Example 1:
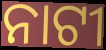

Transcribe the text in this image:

ନାଟୀ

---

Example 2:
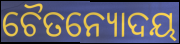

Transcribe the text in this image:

ଚୈତନ୍ୟୋଦୟ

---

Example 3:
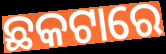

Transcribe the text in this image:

ଛକଟାରେ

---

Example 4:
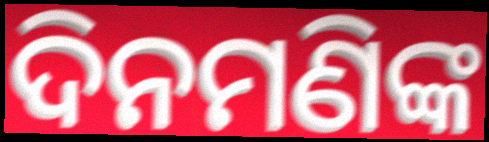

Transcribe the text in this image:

ଦିନମଣିଙ୍କ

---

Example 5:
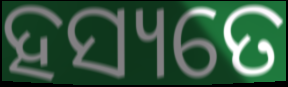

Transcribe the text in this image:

ହସ୍ୟତେ